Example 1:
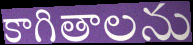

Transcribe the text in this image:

కాగితాలను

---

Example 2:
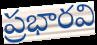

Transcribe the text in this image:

ప్రభారవి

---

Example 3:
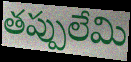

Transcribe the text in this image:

తప్పులేమి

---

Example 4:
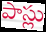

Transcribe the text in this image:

పాస్లు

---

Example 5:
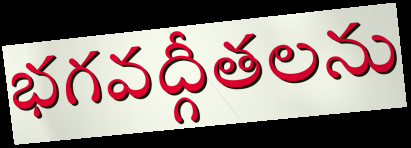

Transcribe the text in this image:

భగవద్గీతలను